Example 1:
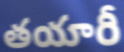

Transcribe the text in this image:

తయారీ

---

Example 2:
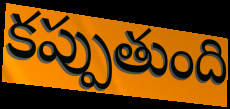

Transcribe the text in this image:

కప్పుతుంది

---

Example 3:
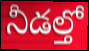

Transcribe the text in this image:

నీడల్తో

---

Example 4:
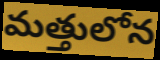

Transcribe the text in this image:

మత్తులోన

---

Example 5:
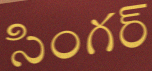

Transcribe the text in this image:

సింగర్